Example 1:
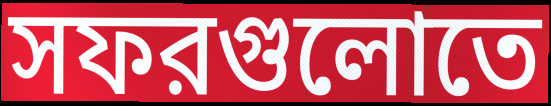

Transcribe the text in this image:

সফরগুলোতে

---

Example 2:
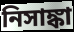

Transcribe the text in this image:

নিসাঙ্কা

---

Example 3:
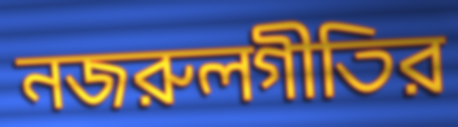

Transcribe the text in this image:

নজরুলগীতির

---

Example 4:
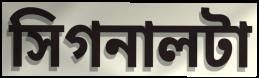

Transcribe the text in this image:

সিগনালটা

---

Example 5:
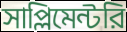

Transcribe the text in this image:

সাপ্লিমেন্টরি